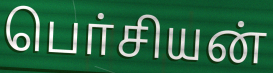
பெர்சியன்